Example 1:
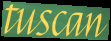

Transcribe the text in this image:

tuscan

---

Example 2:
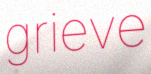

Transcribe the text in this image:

grieve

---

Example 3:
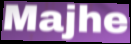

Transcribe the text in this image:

Majhe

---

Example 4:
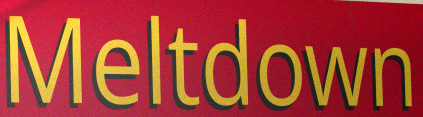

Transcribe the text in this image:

Meltdown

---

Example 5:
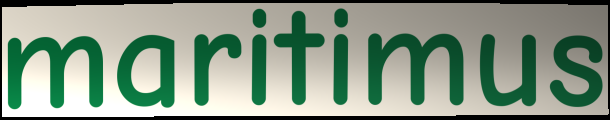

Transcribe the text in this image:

maritimus